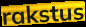
rakstus